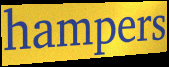
hampers